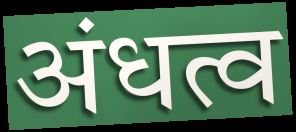
अंधत्व